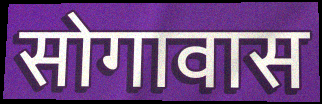
सोगावास